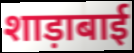
शाड़ाबाई